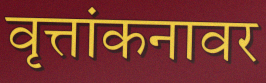
वृत्तांकनावर